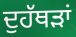
ਦੁਹੱਥੜਾਂ